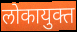
लोकायुक्त